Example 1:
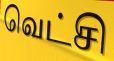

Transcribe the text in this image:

வெட்சி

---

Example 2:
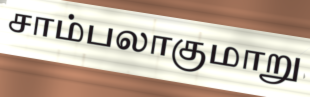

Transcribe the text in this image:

சாம்பலாகுமாறு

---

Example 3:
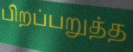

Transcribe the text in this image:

பிறப்பறுத்த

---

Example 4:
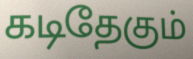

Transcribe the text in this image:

கடிதேகும்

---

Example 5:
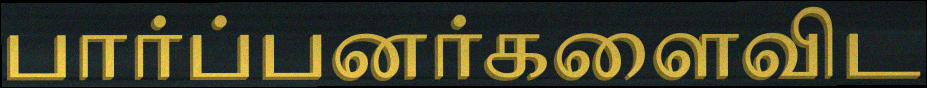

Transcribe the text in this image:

பார்ப்பனர்களைவிட